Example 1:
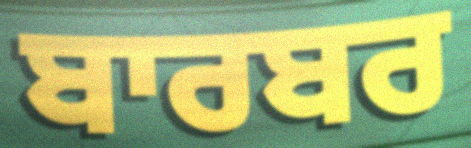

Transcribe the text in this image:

ਬਾਰਬਰ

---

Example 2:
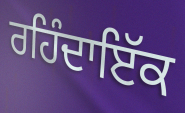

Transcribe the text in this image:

ਰਹਿੰਦਾਇੱਕ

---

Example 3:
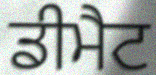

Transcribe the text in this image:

ਡੀਮੈਟ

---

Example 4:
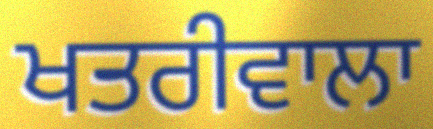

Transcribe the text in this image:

ਖਤਰੀਵਾਲਾ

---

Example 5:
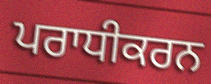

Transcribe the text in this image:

ਪਰਾਧੀਕਰਨ